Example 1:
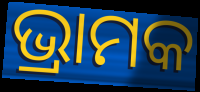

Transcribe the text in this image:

ଭ୍ରାମକ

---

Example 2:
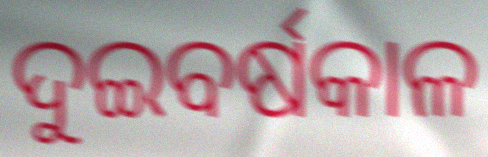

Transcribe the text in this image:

ଦୁଇବର୍ଷକାଳ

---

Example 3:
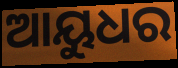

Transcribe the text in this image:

ଆୟୁଧର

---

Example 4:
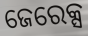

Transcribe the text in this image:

ଜେରେକ୍ସ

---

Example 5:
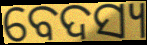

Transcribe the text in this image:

ବେଦସ୍ୟ